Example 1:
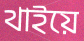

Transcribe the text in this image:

থাইয়ে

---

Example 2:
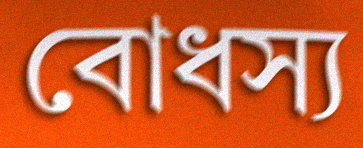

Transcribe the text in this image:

বোধস্য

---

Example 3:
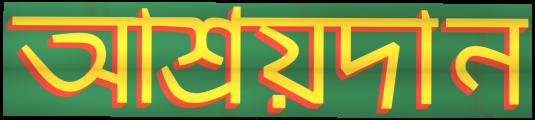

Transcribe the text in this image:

আশ্রয়দান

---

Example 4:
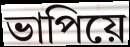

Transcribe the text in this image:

ভাপিয়ে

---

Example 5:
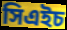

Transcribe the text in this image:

সিএইচ